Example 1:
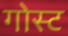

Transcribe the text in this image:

गोस्ट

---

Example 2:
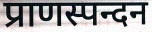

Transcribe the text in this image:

प्राणस्पन्दन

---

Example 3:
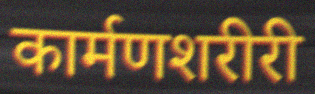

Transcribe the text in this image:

कार्मणशरीरी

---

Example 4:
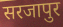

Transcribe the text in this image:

सरजापुर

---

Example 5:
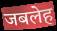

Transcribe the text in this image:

जबलेह